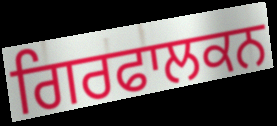
ਗਿਰਫਾਲਕਨ